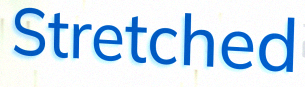
Stretched